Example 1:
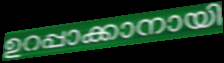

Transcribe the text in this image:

ഉറപ്പാക്കാനായി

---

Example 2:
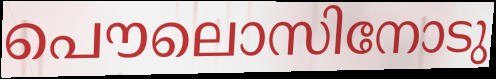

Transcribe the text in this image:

പൌലൊസിനോടു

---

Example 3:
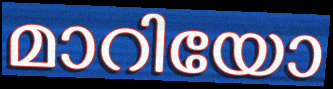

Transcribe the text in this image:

മാറിയോ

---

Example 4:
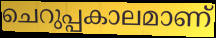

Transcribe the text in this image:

ചെറുപ്പകാലമാണ്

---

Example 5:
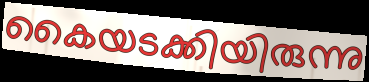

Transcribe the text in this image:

കൈയടക്കിയിരുന്നു